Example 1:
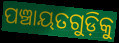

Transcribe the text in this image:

ପଞ୍ଚାୟତଗୁଡ଼ିକୁ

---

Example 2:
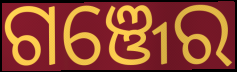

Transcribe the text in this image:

ଗଞ୍ଜେର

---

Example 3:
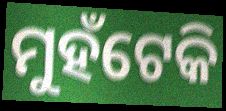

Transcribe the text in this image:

ମୁହଁଟେକି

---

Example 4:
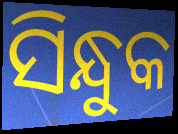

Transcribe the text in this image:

ସିନ୍ଧୁକ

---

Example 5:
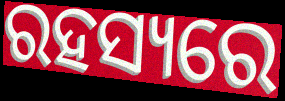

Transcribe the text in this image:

ରହସ୍ୟରେ